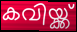
കവിയ്ക്ക്